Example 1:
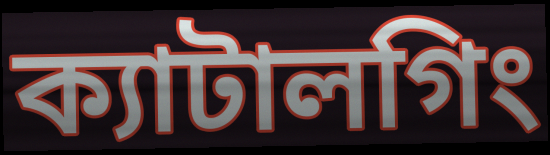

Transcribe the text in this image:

ক্যাটালগিং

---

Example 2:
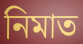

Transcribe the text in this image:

নিমাত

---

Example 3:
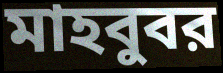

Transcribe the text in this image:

মাহবুবর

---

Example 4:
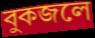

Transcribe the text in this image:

বুকজলে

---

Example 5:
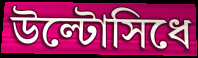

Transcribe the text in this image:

উল্টোসিধে